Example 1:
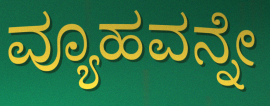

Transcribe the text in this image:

ವ್ಯೂಹವನ್ನೇ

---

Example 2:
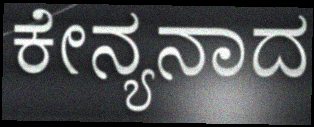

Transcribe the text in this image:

ಕೇನ್ಯನಾದ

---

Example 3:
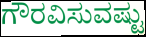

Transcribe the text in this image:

ಗೌರವಿಸುವಷ್ಟು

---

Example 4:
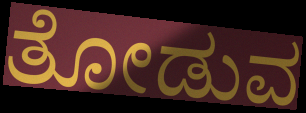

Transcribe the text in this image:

ತೋಡುವ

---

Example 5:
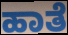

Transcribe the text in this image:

ಹಾತೆ